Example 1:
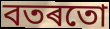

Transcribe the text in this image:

বতৰতো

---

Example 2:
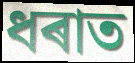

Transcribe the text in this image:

ধৰাত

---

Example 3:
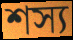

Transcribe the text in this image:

শস্য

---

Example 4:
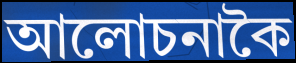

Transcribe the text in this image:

আলোচনাকৈ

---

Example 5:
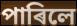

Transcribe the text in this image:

পাৰিলে